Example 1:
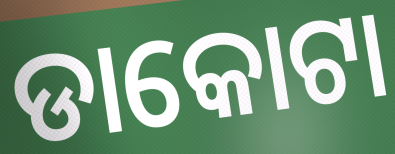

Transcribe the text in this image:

ଡାକୋଟା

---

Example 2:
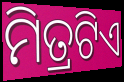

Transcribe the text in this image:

ମିତ୍ରଟିଏ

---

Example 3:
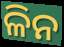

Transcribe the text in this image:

ଳିନ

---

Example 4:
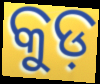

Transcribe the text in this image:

କୁଡ଼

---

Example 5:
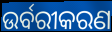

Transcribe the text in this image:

ଉର୍ବରୀକରଣ